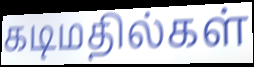
கடிமதில்கள்